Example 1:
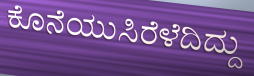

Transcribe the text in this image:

ಕೊನೆಯುಸಿರೆಳೆದಿದ್ದು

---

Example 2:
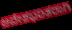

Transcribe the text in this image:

ಆವೇಶಭರಿತರಾಗಿ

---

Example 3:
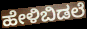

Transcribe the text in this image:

ಹೇಳಿಬಿಡಲೆ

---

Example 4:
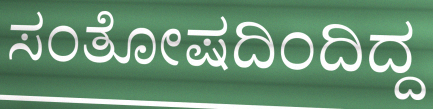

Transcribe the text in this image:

ಸಂತೋಷದಿಂದಿದ್ದ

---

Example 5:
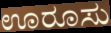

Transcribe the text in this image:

ಊರೂಸು